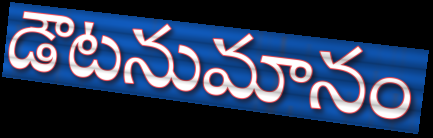
డౌటనుమానం